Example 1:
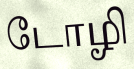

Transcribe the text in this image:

டோழி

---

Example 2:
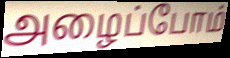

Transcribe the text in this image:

அழைப்போம்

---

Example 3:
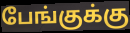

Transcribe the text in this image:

பேங்குக்கு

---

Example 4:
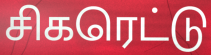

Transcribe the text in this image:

சிகரெட்டு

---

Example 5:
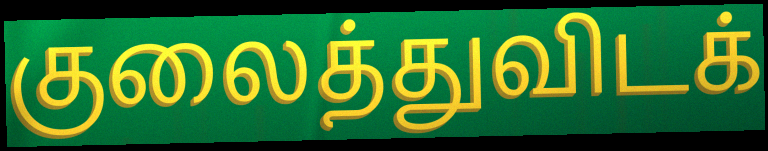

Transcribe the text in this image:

குலைத்துவிடக்